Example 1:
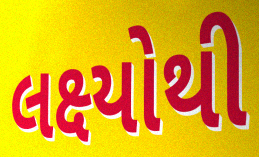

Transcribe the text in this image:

લક્ષ્યોથી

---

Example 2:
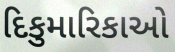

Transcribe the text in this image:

દિકુમારિકાઓ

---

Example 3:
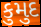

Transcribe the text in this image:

કુમુદ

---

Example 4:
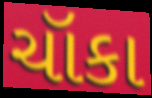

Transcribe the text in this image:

ચૉકા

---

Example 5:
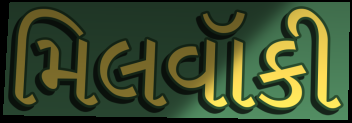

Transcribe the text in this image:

મિલવૉકી